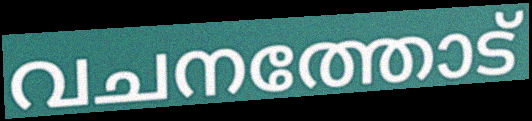
വചനത്തോട്